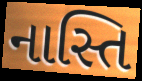
નાસ્તિ